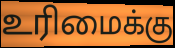
உரிமைக்கு